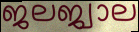
ജലജ്വാല